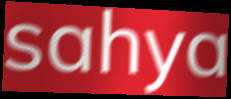
sahya